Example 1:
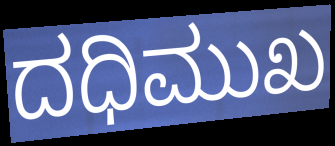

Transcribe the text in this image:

ದಧಿಮುಖ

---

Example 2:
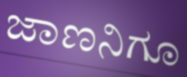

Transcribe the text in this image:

ಜಾಣನಿಗೂ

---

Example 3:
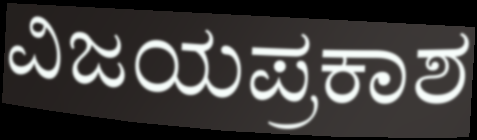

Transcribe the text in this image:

ವಿಜಯಪ್ರಕಾಶ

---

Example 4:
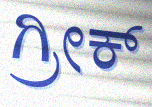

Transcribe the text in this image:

ಗ್ರೀಕ್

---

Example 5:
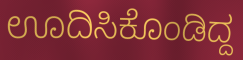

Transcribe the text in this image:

ಊದಿಸಿಕೊಂಡಿದ್ದ